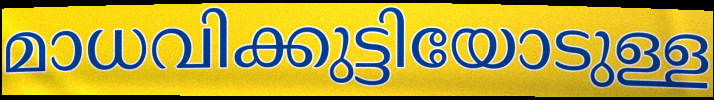
മാധവിക്കുട്ടിയോടുള്ള